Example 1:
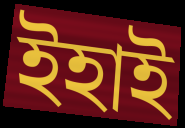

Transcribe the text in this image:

ইহাই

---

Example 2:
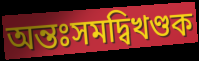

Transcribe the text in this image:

অন্তঃসমদ্বিখণ্ডক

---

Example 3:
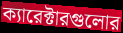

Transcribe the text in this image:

ক্যারেক্টারগুলোর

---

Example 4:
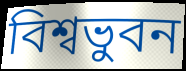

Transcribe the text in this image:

বিশ্বভুবন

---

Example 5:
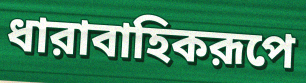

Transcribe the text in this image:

ধারাবাহিকরূপে